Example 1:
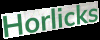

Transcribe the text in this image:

Horlicks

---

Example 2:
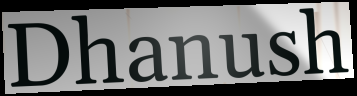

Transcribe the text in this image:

Dhanush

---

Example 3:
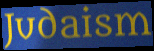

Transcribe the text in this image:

Judaism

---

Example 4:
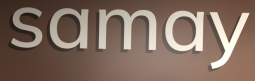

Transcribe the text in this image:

samay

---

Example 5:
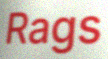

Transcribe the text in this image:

Rags